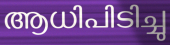
ആധിപിടിച്ചു